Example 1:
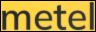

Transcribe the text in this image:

metel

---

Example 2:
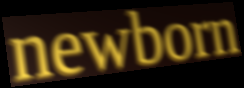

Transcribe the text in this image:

newborn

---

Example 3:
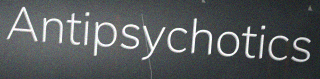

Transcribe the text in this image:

Antipsychotics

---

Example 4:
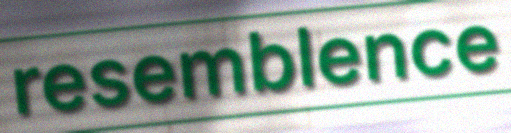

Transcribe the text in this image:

resemblence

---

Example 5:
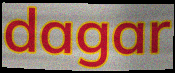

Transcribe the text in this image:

dagar